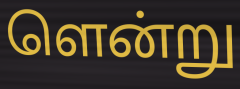
ளென்று